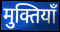
मुक्तियाँ